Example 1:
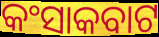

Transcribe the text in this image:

କଂସାକବାଟ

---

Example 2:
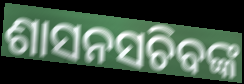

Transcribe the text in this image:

ଶାସନସଚିବଙ୍କ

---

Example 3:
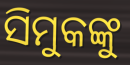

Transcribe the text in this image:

ସିମୁକଙ୍କୁ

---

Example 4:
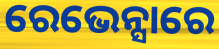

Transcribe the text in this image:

ରେଭେନ୍ସାରେ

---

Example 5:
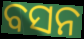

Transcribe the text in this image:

ବସନ